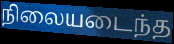
நிலையடைந்த